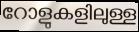
റോളുകളിലുള്ള